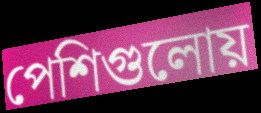
পেশিগুলোয়